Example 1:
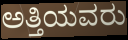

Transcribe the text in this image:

ಅತ್ತಿಯವರು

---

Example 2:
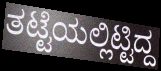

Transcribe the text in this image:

ತಟ್ಟೆಯಲ್ಲಿಟ್ಟಿದ್ದ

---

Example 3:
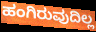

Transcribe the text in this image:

ಹಂಗಿರುವುದಿಲ್ಲ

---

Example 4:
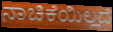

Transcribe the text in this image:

ನಾಚಿಕೆಯಿಲ್ಲದೆ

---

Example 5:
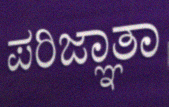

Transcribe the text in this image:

ಪರಿಜ್ಞಾತಾ